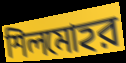
শিলমোহর